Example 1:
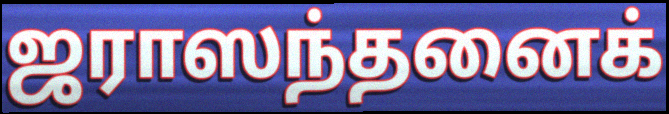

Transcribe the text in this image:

ஜராஸந்தனைக்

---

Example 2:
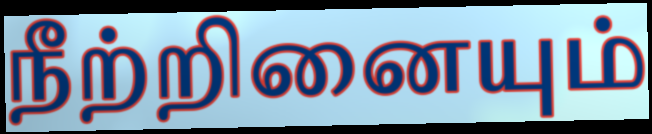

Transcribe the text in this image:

நீற்றினையும்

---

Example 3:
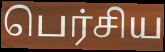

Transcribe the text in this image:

பெர்சிய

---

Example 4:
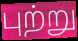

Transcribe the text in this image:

புற்று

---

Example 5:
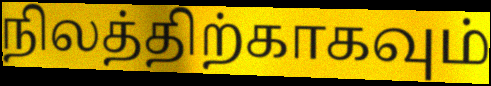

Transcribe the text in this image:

நிலத்திற்காகவும்